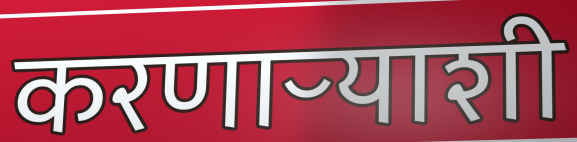
करणाऱ्याशी